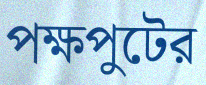
পক্ষপুটের